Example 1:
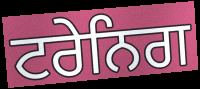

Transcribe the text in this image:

ਟਰੇਨਿਗ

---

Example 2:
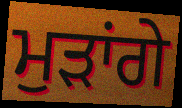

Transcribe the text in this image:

ਮੁੜਾਂਗੇ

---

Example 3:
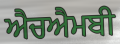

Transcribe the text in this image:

ਐਚਐਮਬੀ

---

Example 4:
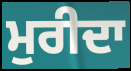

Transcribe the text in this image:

ਮੁਰੀਦਾ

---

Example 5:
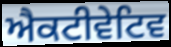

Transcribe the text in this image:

ਐਕਟੀਵੇਟਿਵ